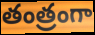
తంత్రంగా